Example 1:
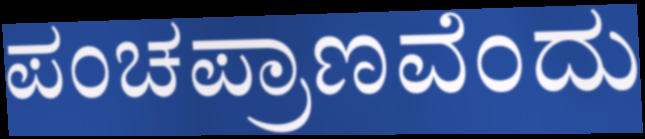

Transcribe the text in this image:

ಪಂಚಪ್ರಾಣವೆಂದು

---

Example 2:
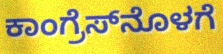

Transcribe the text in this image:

ಕಾಂಗ್ರೆಸ್‌ನೊಳಗೆ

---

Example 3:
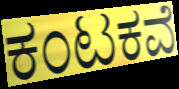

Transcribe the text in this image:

ಕಂಟಕವೆ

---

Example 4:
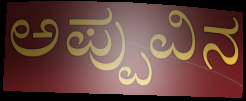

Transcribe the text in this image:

ಅಪ್ಪುವಿನ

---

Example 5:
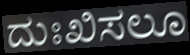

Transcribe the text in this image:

ದುಃಖಿಸಲೂ